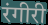
रंगीरी